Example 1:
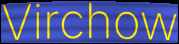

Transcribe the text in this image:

Virchow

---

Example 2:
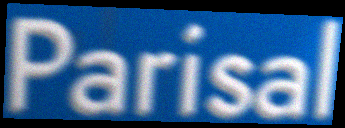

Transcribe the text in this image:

Parisal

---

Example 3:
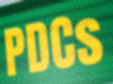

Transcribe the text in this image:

PDCs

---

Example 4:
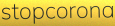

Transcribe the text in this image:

stopcorona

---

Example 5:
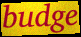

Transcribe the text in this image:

budge